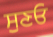
ਸੁਣਓ